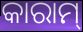
କାରାମ୍